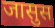
जासुस